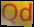
Qd